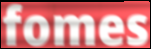
fomes